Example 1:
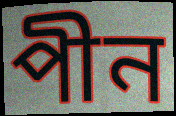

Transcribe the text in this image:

পীন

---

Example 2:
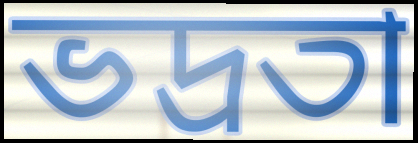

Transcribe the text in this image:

ভদ্রতা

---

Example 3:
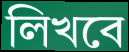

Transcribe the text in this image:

লিখবে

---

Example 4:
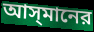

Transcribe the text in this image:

আস্‌মানের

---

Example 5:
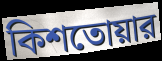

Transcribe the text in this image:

কিশতোয়ার